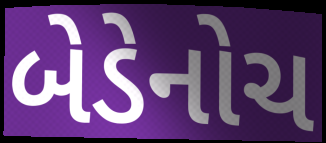
બેડેનોચ